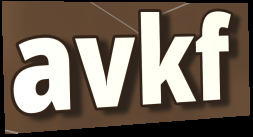
avkf